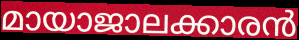
മായാജാലക്കാരൻ